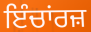
ਇੰਚਾਂਰਜ਼